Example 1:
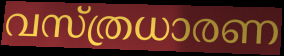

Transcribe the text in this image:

വസ്ത്രധാരണ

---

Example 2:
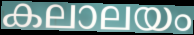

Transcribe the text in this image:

കലാലയം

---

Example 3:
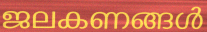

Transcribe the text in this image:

ജലകണങ്ങൾ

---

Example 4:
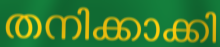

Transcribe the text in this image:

തനിക്കാക്കി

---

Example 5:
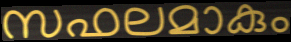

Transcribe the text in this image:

സഫലമാകും